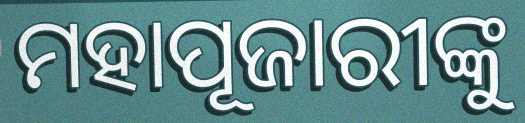
ମହାପୂଜାରୀଙ୍କୁ